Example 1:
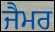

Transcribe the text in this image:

ਜੈਮਰ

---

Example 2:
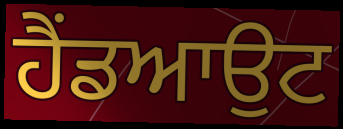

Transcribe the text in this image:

ਹੈਂਡਆਉਟ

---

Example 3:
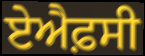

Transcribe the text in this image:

ਏਐਫ਼ਸੀ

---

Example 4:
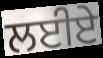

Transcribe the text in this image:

ਲਈਏ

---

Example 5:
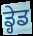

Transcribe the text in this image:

ਡ੍ਹੇਡ